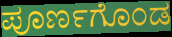
ಪೂರ್ಣಗೊಂಡ